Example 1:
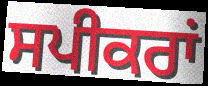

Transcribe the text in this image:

ਸਪੀਕਰਾਂ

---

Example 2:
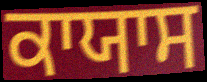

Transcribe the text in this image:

ਕਾਯਾਸ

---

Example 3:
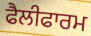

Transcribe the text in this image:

ਫੈਲੀਫਾਰਮ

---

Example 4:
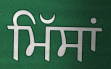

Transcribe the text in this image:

ਮਿੱਸਾਂ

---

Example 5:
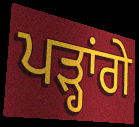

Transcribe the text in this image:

ਪੜ੍ਹਾਂਗੇ